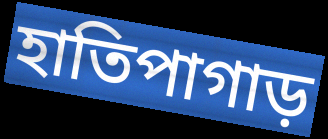
হাতিপাগাড়